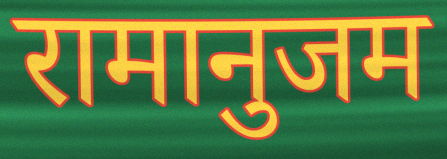
रामानुजम